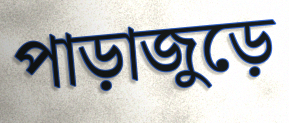
পাড়াজুড়ে